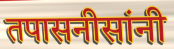
तपासनीसांनी